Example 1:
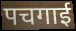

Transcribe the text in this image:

पचगाई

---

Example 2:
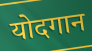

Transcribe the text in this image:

योदगान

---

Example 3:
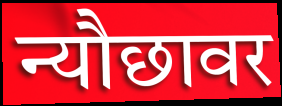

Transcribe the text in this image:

न्यौछावर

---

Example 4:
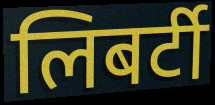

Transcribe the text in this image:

लिबर्टी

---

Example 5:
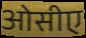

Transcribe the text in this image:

ओसीए